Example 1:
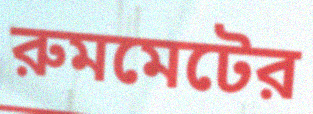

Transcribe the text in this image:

রুমমেটের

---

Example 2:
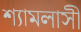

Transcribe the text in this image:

শ্যামলাসী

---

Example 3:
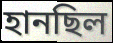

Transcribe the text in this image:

হানছিল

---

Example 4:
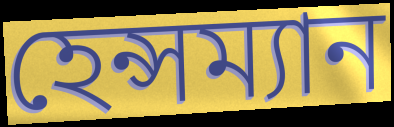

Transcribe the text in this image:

হেন্সম্যান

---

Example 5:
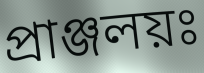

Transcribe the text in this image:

প্রাঞ্জলয়ঃ